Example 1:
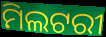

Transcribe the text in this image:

ମିଲଟରୀ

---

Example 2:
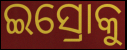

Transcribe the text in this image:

ଇସ୍ରୋକୁ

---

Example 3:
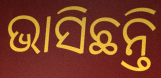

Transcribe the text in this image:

ଭାସିଛନ୍ତି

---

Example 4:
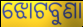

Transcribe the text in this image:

ଝୋଟବୁଣା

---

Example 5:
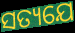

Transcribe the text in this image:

ସତ୍ୟଯେ